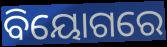
ବିୟୋଗରେ